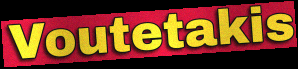
Voutetakis